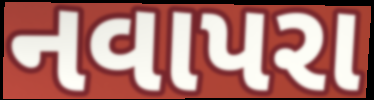
નવાપરા